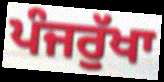
ਪੰਜਰੁੱਖਾ